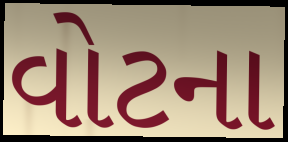
વોટના